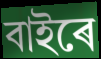
বাইৰে